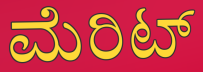
ಮೆರಿಟ್